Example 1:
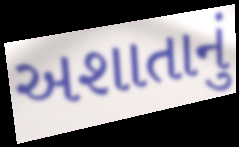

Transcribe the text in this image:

અશાતાનું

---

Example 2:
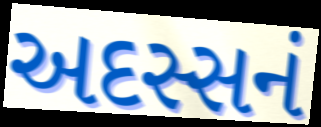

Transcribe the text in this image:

અદસ્સનં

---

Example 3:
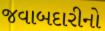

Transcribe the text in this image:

જવાબદારીનો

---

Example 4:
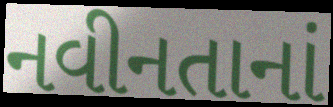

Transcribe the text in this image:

નવીનતાનાં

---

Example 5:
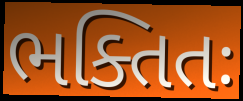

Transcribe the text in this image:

ભક્તિતઃ